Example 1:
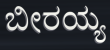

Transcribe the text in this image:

ಬೀರಯ್ಯ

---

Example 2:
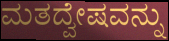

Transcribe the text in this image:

ಮತದ್ವೇಷವನ್ನು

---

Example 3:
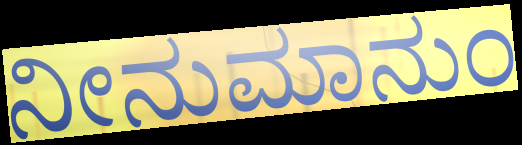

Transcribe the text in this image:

ನೀನುಮಾನುಂ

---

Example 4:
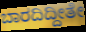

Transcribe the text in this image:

ಬಾರದಿದ್ದೀತೇ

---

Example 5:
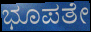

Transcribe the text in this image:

ಭೂಪತೇ